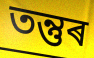
তন্তুৰ